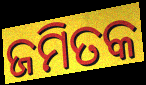
ଜମିତକ